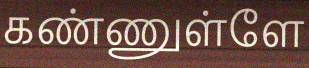
கண்ணுள்ளே